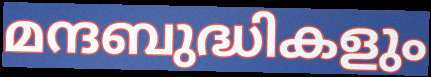
മന്ദബുദ്ധികളും